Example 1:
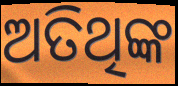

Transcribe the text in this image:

ଅତିଥିଙ୍କ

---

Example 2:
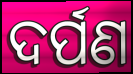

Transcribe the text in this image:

ଦର୍ପଣ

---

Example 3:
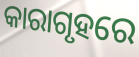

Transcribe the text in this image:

କାରାଗୃହରେ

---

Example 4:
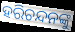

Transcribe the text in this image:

ହରିଚନ୍ଦନଙ୍କୁ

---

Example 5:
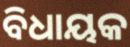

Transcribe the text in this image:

ବିଧାୟକ